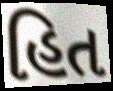
હિત